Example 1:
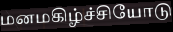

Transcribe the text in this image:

மனமகிழ்ச்சியோடு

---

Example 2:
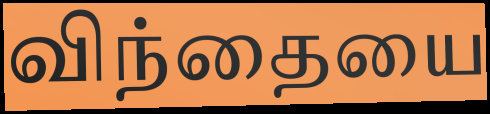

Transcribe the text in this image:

விந்தையை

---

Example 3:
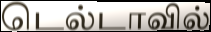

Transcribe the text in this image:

டெல்டாவில்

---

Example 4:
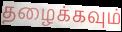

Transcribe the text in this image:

தழைக்கவும்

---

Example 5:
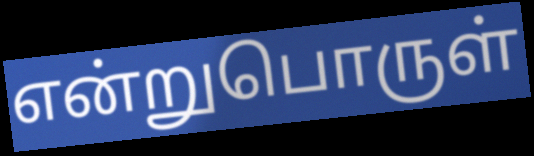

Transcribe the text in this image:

என்றுபொருள்